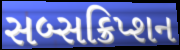
સબ્સક્રિપ્શન